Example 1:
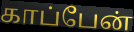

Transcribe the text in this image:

காப்பேன்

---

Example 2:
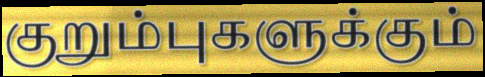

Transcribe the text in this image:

குறும்புகளுக்கும்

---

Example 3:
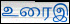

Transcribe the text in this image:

உரைஇ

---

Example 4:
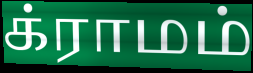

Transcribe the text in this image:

க்ராமம்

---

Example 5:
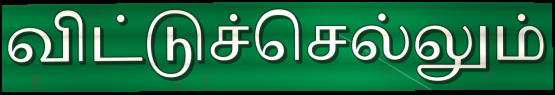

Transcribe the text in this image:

விட்டுச்செல்லும்